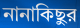
নানাকিছুর